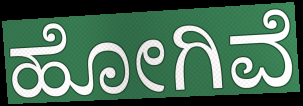
ಹೋಗಿವೆ